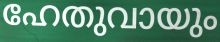
ഹേതുവായും